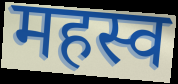
महस्व